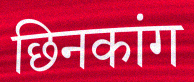
छिनकांग